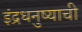
इंद्रधनुष्याची